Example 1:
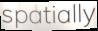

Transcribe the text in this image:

spatially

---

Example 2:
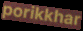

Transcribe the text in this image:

porikkhar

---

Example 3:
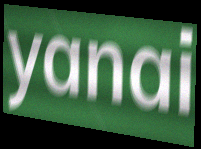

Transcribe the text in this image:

yanai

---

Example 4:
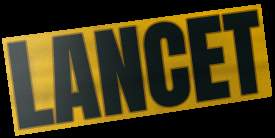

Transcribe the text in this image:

LANCET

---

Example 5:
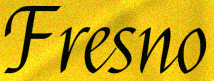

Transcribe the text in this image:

Fresno